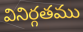
వినిర్గతము